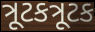
ત્રૂટકત્રૂટક